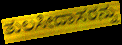
ತುಲಸೀದಾಸರನ್ನು